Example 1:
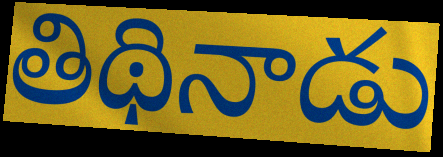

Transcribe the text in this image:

తిథినాడు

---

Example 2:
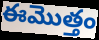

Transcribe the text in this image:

ఈమొత్తం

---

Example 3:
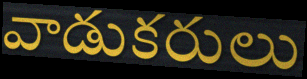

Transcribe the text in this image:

వాడుకరులు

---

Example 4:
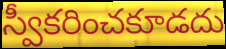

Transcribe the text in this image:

స్వీకరించకూడదు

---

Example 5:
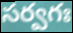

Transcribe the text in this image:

సర్వగః